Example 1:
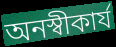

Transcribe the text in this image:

অনস্বীকাৰ্য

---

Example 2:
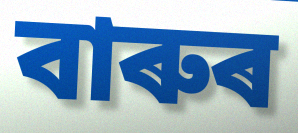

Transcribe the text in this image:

বাৰুৰ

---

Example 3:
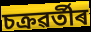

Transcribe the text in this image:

চক্ৰৱৰ্তীৰ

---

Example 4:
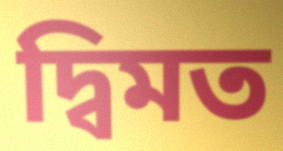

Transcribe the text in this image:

দ্বিমত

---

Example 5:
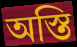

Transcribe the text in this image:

অস্তি